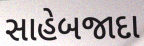
સાહેબજાદા